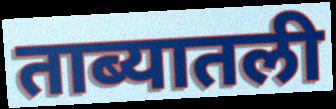
ताब्यातली